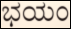
ಭಯಂ